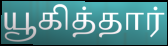
யூகித்தார்